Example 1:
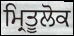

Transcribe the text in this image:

ਮ੍ਰਿਤੂਲੋਕ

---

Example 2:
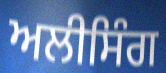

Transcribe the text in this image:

ਅਲੀਸਿੰਗ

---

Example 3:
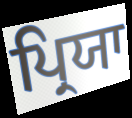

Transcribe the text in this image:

ਪ੍ਰਿਯਾ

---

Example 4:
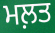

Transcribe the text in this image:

ਮਲ਼ਤ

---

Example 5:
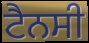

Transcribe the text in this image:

ਟੈਨਸੀ